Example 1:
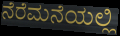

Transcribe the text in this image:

ನೆರೆಮನೆಯಲ್ಲಿ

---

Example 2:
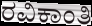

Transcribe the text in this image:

ರವಿಕಾಂತಿ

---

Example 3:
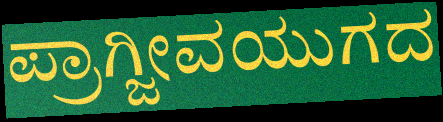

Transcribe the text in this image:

ಪ್ರಾಗ್ಜೀವಯುಗದ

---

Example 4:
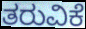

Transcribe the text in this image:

ತರುವಿಕೆ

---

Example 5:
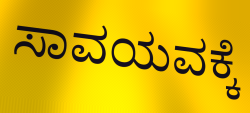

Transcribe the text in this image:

ಸಾವಯವಕ್ಕೆ